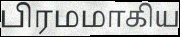
பிரமமாகிய